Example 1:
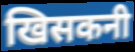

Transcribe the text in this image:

खिसकनी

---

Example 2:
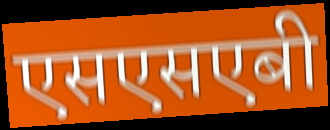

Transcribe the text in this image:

एसएसएबी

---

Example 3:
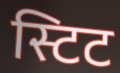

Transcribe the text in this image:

स्टिट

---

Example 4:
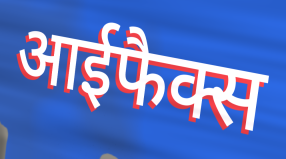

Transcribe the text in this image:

आईफैक्स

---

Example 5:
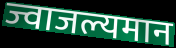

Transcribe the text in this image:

ज्वाजल्यमान